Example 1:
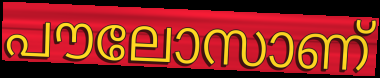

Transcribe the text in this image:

പൗലോസാണ്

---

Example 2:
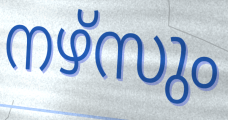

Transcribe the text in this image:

നഴ്സും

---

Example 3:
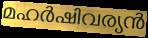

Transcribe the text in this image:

മഹർഷിവര്യൻ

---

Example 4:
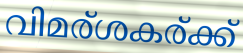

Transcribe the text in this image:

വിമര്ശകര്ക്ക്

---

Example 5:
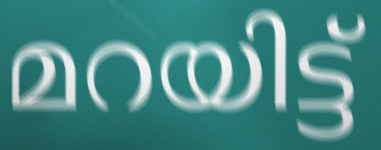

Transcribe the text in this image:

മറയിട്ട്